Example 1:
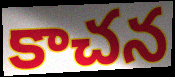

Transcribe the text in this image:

కాచన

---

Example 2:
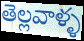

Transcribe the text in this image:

తెల్లవాళ్ళ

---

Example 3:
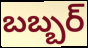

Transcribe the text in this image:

బబ్బర్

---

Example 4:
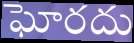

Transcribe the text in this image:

ఘోరదు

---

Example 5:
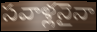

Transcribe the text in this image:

సవాళ్లనైనా